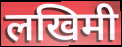
लखिमी